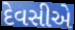
દેવસીએ